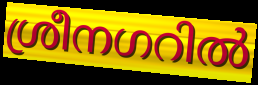
ശ്രീനഗറിൽ